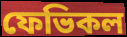
ফেভিকল